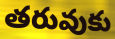
తరువుకు